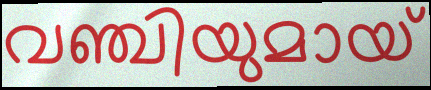
വഞ്ചിയുമായ്